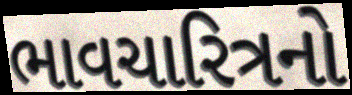
ભાવચારિત્રનો